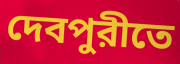
দেবপুরীতে